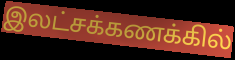
இலட்சக்கணக்கில்